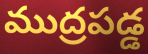
ముద్రపడ్డ